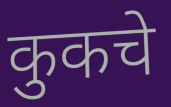
कुकचे